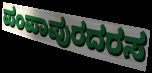
ಪಂಪಾಪುರದರಸ